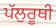
ਪੱਲੁਰੂਥੀ